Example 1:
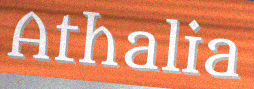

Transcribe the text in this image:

Athalia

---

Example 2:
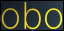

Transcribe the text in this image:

obo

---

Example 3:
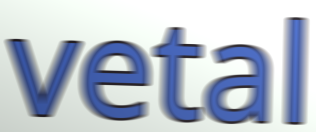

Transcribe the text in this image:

vetal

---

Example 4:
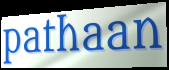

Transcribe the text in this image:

pathaan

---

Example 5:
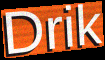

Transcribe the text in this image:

Drik